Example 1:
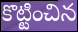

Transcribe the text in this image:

కొట్టించిన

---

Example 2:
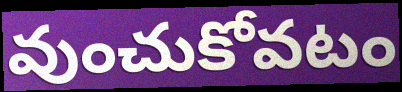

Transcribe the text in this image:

వుంచుకోవటం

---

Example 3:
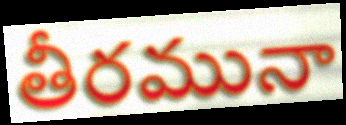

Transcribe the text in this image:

తీరమునా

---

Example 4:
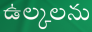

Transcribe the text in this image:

ఉల్కలను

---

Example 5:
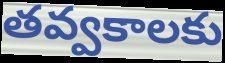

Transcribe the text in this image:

తవ్వకాలకు